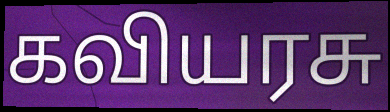
கவியரசு